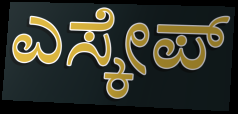
ಎಸ್ಕೇಪ್